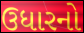
ઉધારનો